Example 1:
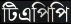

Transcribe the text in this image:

টিএপিপি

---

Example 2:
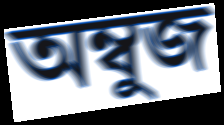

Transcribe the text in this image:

অম্বুজ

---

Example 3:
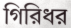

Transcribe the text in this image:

গিরিধর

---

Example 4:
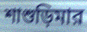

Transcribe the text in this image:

শাশুড়িমার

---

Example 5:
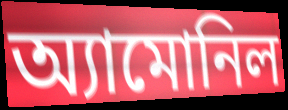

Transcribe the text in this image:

অ্যামোনিল